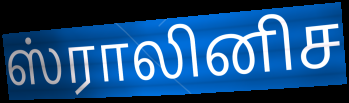
ஸ்ராலினிச